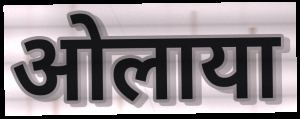
ओलाया